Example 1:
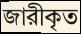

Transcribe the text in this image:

জারীকৃত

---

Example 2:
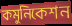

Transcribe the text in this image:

কমুনিকেশন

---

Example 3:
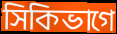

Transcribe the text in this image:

সিকিভাগে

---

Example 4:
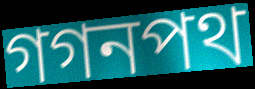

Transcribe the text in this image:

গগনপথ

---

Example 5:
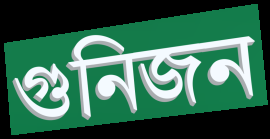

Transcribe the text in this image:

গুনিজন